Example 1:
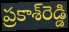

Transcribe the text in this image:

ప్రకాశ్‌రెడ్డి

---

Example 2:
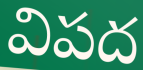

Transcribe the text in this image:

విపద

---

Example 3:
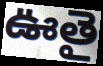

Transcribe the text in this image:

ఊతై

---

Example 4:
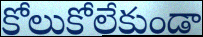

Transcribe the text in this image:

కోలుకోలేకుండా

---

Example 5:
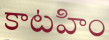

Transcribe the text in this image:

కాటహిం